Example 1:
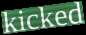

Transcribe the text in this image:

kicked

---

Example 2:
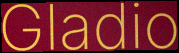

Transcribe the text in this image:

Gladio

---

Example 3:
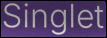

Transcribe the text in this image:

Singlet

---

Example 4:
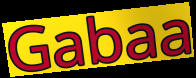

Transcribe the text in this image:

Gabaa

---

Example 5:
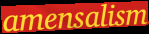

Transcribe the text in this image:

amensalism